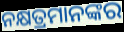
ନକ୍ଷତ୍ରମାନଙ୍କର